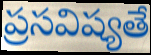
ప్రసవిష్యతే